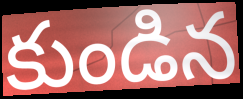
కుండిన